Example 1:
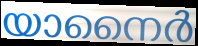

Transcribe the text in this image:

യാനൈർ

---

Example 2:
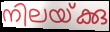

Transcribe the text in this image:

നിലയ്‌ക്കു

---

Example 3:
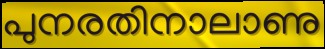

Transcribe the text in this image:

പുനരതിനാലാണു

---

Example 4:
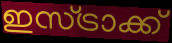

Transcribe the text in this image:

ഇസ്ട്രാക്ക്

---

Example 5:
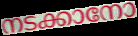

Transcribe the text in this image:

നടക്കാനോ